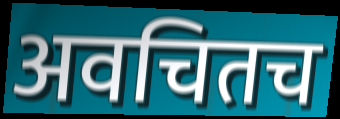
अवचितच